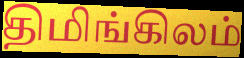
திமிங்கிலம்